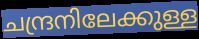
ചന്ദ്രനിലേക്കുള്ള